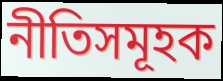
নীতিসমূহক